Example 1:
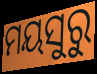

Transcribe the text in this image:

ମୟସୁରୁ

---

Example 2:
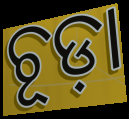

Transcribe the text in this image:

ଚୂଡ଼ା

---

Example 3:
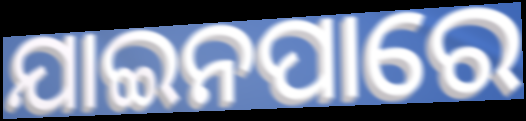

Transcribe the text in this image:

ଯାଇନପାରେ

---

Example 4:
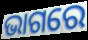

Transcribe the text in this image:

ଭାଗରେ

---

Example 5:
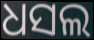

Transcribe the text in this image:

ଧସଲ